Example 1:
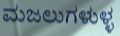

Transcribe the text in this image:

ಮಜಲುಗಳುಳ್ಳ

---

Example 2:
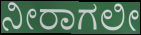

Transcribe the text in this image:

ನೀರಾಗಲೀ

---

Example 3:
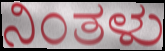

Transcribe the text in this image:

ನಿಂತಳು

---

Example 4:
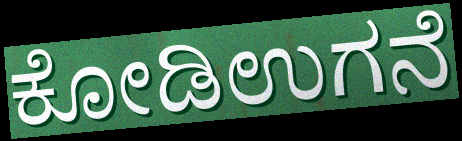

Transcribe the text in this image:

ಕೋಡಿಉಗನೆ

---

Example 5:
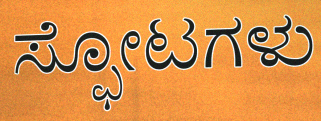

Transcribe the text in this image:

ಸ್ಫೋಟಗಳು